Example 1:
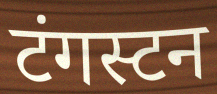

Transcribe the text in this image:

टंगस्टन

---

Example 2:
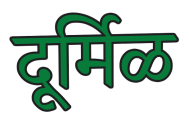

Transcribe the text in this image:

दूर्मिळ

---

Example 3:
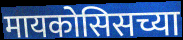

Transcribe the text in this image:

मायकोसिसच्या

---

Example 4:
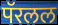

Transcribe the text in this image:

पॅरलल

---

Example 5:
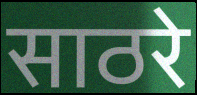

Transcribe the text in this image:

साठरे